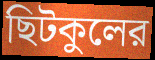
ছিটকুলের